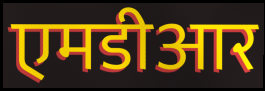
एमडीआर